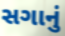
સગાનું